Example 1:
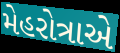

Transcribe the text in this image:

મેહરોત્રાએ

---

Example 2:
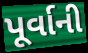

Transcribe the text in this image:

પૂર્વાની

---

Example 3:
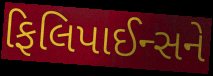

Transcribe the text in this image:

ફિલિપાઈન્સને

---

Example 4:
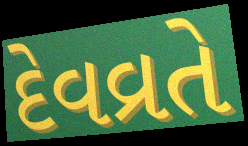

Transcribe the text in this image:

દેવવ્રતે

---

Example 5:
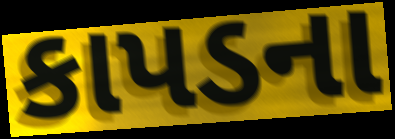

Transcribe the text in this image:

કાપડના